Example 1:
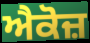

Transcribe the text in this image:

ਐਕੋਜ਼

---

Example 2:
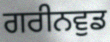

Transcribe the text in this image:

ਗਰੀਨਵੁਡ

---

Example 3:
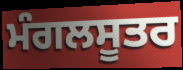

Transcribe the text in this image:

ਮੰਗਲਸੂਤਰ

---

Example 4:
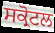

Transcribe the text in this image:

ਸਕ੍ਰੋਟਲ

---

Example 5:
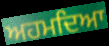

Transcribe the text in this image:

ਅਹਮਦਿਆ